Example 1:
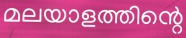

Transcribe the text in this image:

മലയാളത്തിന്റെ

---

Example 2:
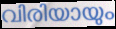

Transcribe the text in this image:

വിരിയായും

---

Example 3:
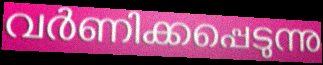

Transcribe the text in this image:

വർണിക്കപ്പെടുന്നു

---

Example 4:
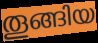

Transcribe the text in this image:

തൂങ്ങിയ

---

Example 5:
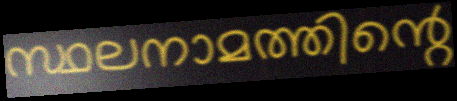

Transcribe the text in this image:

സ്ഥലനാമത്തിന്റെ